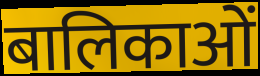
बालिकाओं